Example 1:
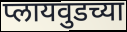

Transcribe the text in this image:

प्लायवुडच्या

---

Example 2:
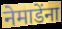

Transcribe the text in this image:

नेमाडेंना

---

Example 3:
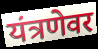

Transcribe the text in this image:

यंत्रणेवर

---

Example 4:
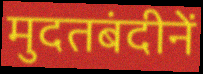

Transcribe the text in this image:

मुदतबंदीनें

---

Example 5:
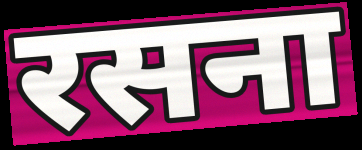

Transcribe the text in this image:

रसना